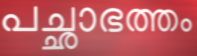
പച്ഛാഭത്തം